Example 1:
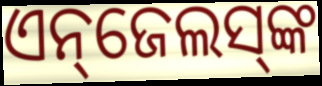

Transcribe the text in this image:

ଏନ୍‌ଜେଲସ୍‌ଙ୍କ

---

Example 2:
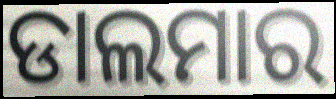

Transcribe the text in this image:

ଡାଲମାର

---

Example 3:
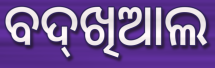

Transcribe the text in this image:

ବଦ୍‌ଖିଆଲ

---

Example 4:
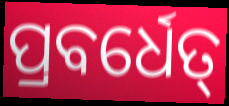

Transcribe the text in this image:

ପ୍ରବର୍ଧେତ୍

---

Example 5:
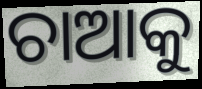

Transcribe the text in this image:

ଚାଆକୁ